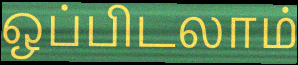
ஒப்பிடலாம்